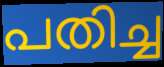
പതിച്ച